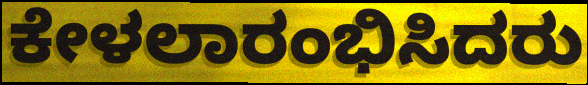
ಕೇಳಲಾರಂಭಿಸಿದರು